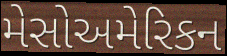
મેસોઅમેરિકન